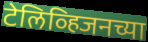
टेलिव्हिजनच्या